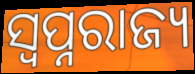
ସ୍ୱପ୍ନରାଜ୍ୟ